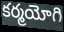
కర్మయోగి